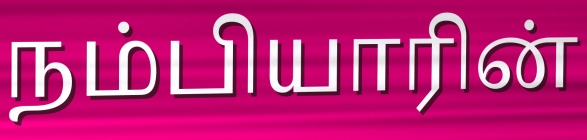
நம்பியாரின்